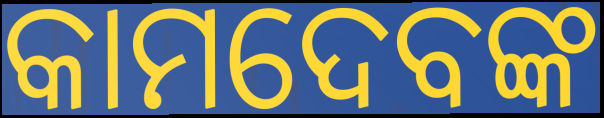
କାମଦେବଙ୍କ